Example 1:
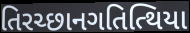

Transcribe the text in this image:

તિરચ્છાનગતિત્થિયા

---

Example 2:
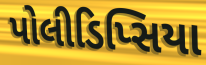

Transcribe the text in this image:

પોલીડિપ્સિયા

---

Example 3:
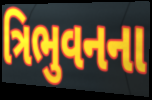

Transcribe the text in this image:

ત્રિભુવનના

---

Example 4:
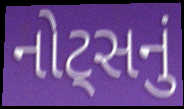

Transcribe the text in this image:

નોટ્સનું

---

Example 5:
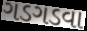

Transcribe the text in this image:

ગડગડવા